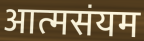
आत्मसंयम